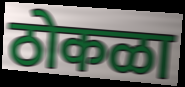
ठोकळा